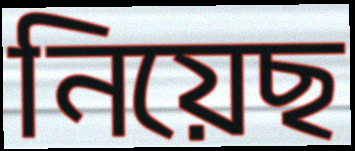
নিয়েছ